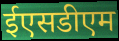
ईएसडीएम